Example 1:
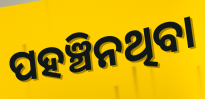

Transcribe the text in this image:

ପହଞ୍ଚିନଥିବା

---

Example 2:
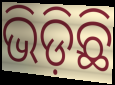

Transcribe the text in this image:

ଭିଡ଼ିଛି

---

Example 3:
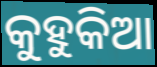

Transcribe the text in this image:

କୁହୁକିଆ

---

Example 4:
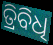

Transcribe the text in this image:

ତ୍ରିବିଧି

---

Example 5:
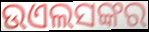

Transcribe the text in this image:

ଉଏଲସଙ୍କର